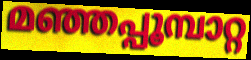
മഞ്ഞപ്പൂമ്പാറ്റ